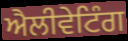
ਐਲੀਵੇਟਿੰਗ